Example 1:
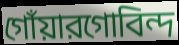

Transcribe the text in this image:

গোঁয়ারগোবিন্দ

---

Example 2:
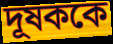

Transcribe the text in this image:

দূষককে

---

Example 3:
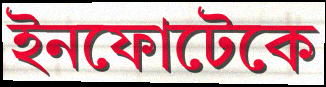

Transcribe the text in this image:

ইনফোটেকে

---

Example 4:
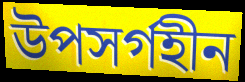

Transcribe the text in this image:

উপসর্গহীন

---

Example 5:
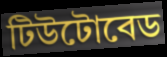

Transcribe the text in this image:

টিউটোবেড